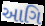
આગિ